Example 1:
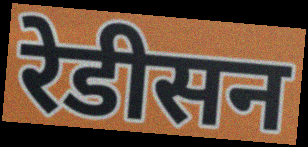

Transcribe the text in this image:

रेडीसन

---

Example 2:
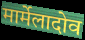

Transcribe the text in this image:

मार्मेलादोव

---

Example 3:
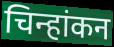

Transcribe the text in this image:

चिन्हांकन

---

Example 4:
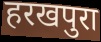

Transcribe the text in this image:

हरखपुरा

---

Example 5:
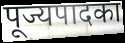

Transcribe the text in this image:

पूज्यपादका